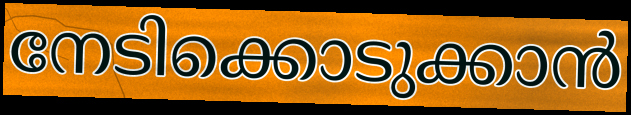
നേടിക്കൊടുക്കാൻ